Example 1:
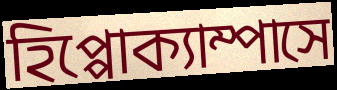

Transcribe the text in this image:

হিপ্পোক্যাম্পাসে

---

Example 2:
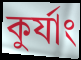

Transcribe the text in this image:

কুর্যাং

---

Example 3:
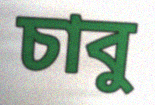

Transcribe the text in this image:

চাবু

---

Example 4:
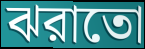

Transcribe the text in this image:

ঝরাতো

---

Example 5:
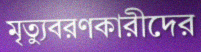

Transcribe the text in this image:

মৃত্যুবরণকারীদের